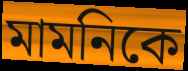
মামনিকে